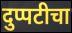
दुप्पटीचा